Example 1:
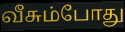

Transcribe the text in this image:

வீசும்போது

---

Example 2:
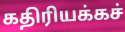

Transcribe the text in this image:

கதிரியக்கச்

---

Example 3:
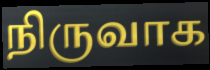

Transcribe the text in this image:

நிருவாக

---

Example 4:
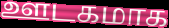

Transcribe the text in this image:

ஊடகமாக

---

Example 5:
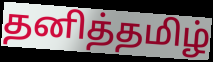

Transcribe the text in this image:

தனித்தமிழ்